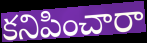
కనిపించారా